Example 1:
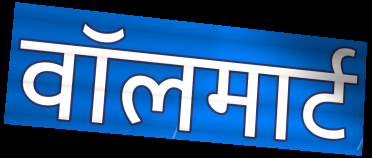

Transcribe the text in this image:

वॉलमार्ट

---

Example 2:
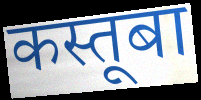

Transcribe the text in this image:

कस्तूबा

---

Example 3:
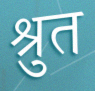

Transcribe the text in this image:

श्रुत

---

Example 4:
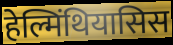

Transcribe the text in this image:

हेल्मिंथियासिस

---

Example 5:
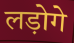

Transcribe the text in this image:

लड़ोगे